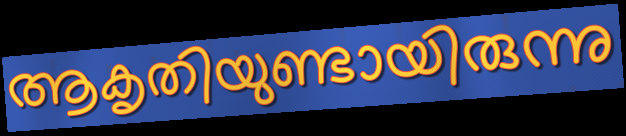
ആകൃതിയുണ്ടായിരുന്നു